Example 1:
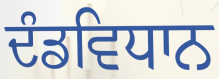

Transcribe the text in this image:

ਦੰਡਵਿਧਾਨ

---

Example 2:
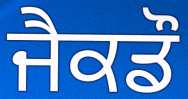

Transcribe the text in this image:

ਜੈਕਡੌ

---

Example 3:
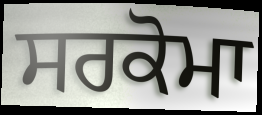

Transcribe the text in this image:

ਸਰਕੋਮਾ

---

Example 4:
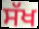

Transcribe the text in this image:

ਸੱਖ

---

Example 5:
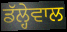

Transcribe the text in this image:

ਡੱਲ੍ਹੇਵਾਲ